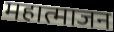
महात्माजन